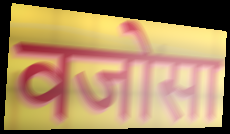
वजोसा